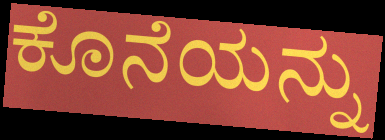
ಕೊನೆಯನ್ನು